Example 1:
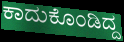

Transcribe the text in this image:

ಕಾದುಕೊಂಡಿದ್ದ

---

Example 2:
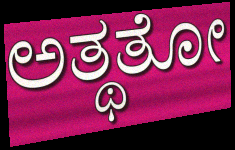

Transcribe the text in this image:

ಅತ್ಥತೋ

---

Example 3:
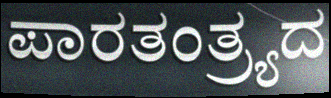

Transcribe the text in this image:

ಪಾರತಂತ್ರ್ಯದ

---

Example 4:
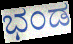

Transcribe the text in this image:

ಭಂಡ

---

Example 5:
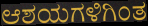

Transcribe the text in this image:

ಆಶಯಗಳಿಗಿಂತ